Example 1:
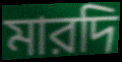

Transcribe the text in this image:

মারদি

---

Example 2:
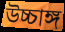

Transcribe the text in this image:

উচ্চাঙ্গ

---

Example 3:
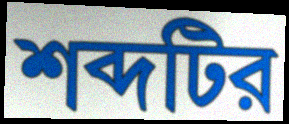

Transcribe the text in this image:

শব্দটির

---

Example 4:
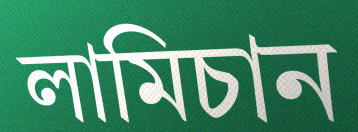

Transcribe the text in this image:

লামিচান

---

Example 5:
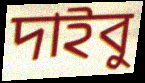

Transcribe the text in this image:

দাইবু